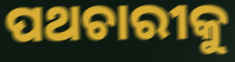
ପଥଚାରୀକୁ